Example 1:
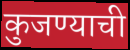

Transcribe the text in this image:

कुजण्याची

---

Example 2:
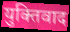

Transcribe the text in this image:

युक्‍तिवाद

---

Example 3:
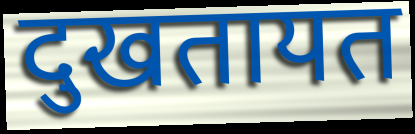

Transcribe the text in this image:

दुखतायत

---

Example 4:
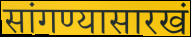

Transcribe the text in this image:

सांगण्यासारखं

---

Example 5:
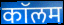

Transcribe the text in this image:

कॉलम